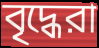
বৃদ্ধেরা